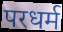
परधर्म